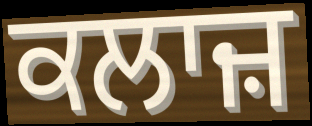
ਕਲਾਜ਼